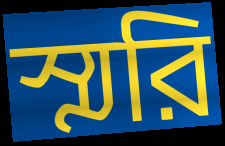
স্মরি